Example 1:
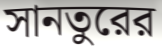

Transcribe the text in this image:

সানতুরের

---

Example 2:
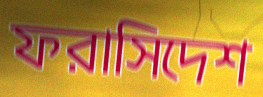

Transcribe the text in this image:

ফরাসিদেশ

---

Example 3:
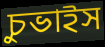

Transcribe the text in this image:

চুভাইস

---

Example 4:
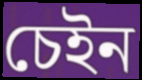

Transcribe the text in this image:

চেইন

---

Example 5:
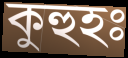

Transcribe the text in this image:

কুহুহঃ